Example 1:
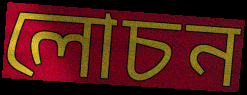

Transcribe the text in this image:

লোচন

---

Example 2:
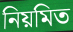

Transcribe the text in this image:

নিয়মিত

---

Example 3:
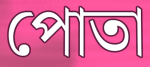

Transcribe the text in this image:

পোতা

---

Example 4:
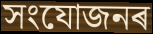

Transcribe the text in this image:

সংযোজনৰ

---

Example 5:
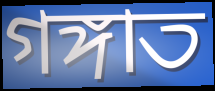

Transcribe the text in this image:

গঙ্গাত